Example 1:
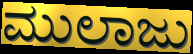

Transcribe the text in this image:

ಮುಲಾಜು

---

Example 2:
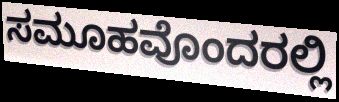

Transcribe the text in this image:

ಸಮೂಹವೊಂದರಲ್ಲಿ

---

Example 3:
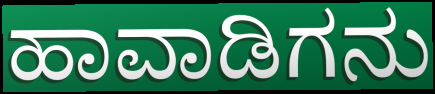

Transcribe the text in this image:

ಹಾವಾಡಿಗನು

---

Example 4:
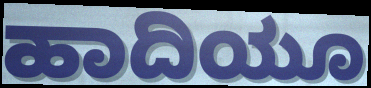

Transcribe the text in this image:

ಹಾದಿಯೂ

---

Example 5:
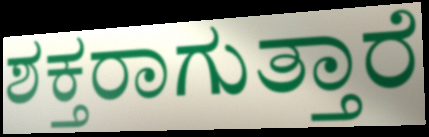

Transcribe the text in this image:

ಶಕ್ತರಾಗುತ್ತಾರೆ